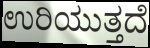
ಉರಿಯುತ್ತದೆ